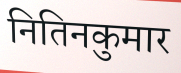
नितिनकुमार